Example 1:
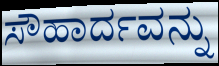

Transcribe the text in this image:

ಸೌಹಾರ್ದವನ್ನು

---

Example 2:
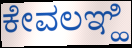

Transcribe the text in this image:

ಕೇವಲಞ್ಹಿ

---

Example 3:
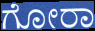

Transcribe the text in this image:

ಗೋರಾ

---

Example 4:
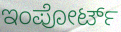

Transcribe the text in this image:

ಇಂಪೋರ್ಟ್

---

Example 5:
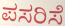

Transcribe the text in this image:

ಪಸರಿಸೆ